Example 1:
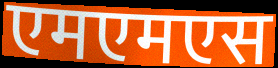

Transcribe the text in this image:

एमएमएस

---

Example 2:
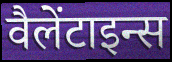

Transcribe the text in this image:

वैलेंटाइन्स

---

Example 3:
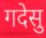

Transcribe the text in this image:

गदेसु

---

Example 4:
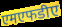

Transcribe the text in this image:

एमएफडीए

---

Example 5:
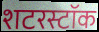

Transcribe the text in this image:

शटरस्‍टॉक